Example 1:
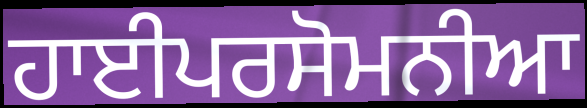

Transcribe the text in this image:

ਹਾਈਪਰਸੋਮਨੀਆ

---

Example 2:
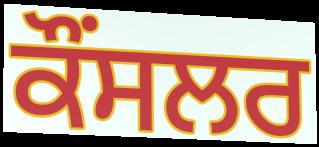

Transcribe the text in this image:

ਕੌੰਸਲਰ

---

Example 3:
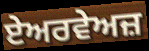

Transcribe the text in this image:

ਏਅਰਵੇਅਜ਼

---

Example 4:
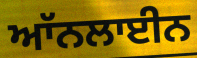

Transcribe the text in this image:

ਆੱਨਲਾਈਨ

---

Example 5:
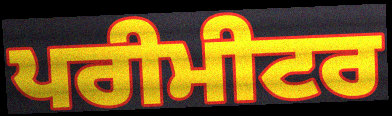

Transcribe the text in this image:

ਪਰੀਮੀਟਰ